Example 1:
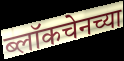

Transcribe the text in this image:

ब्लॉकचेनच्या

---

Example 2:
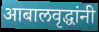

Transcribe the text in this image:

आबालवृद्धांनी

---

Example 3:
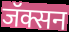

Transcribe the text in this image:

जॅक्सन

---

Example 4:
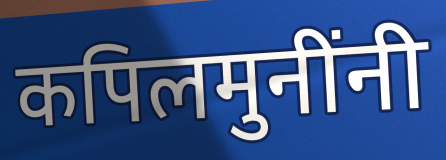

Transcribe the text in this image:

कपिलमुनींनी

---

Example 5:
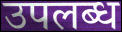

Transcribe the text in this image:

उपलब्ध